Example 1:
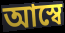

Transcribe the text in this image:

আস্বে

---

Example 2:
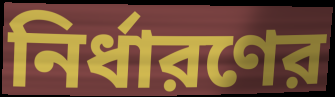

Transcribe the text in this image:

নির্ধারণের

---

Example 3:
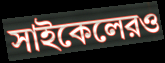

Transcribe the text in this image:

সাইকেলেরও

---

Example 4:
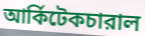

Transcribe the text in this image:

আর্কিটেকচারাল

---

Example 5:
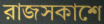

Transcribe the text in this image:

রাজসকাশে